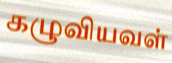
கழுவியவள்